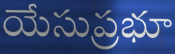
యేసుప్రభూ